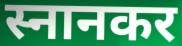
स्नानकर